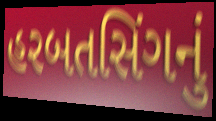
હરબતસિંગનું